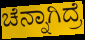
ಚೆನ್ನಾಗಿದ್ರೆ